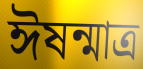
ঈষন্মাত্র